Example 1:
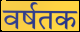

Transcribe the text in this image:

वर्षतक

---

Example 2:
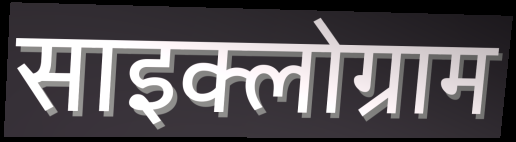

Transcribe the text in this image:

साइक्लोग्राम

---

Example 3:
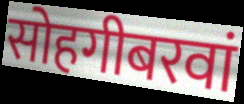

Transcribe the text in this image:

सोहगीबरवां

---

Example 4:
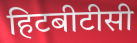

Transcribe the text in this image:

हिटबीटीसी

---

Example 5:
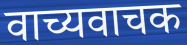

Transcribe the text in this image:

वाच्यवाचक